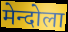
मेन्दोला